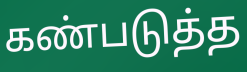
கண்படுத்த